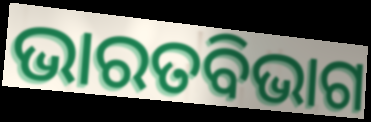
ଭାରତବିଭାଗ